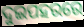
ଦୁଇପହରରେ